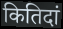
कितिदां